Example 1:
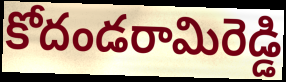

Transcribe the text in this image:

కోదండరామిరెడ్డి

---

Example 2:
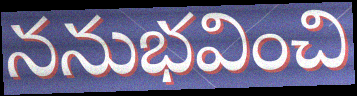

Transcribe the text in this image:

ననుభవించి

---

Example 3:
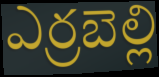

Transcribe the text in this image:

ఎర్రబెల్లి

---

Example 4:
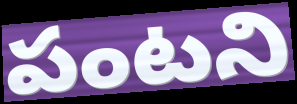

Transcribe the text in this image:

పంటని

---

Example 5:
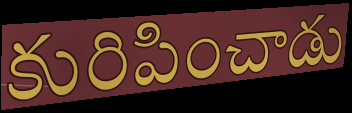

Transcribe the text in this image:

కురిపించాడు